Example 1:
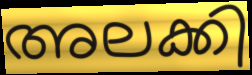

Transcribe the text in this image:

അലക്കി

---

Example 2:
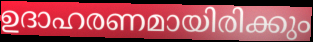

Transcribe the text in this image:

ഉദാഹരണമായിരിക്കും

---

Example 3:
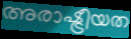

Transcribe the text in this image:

അരാഷ്ട്രീയത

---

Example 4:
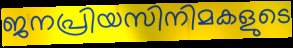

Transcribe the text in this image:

ജനപ്രിയസിനിമകളുടെ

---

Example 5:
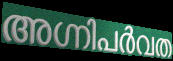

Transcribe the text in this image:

അഗ്നിപർവത